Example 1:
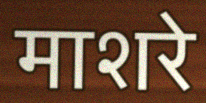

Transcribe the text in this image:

माशरे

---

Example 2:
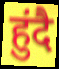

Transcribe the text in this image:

हुंदै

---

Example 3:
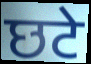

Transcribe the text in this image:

छटे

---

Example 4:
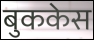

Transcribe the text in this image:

बुककेस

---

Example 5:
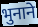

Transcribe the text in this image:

भुनाने